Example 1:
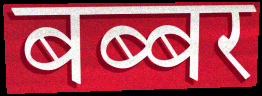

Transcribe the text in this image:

बब्बर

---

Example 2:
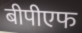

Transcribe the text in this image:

बीपीएफ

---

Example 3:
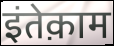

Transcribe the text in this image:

इंतेक़ाम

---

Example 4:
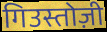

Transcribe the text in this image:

गिउस्तोज़ी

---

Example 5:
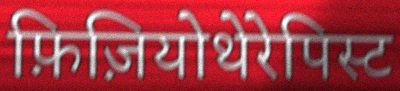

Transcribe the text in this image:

फ़िज़ियोथेरेपिस्ट